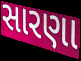
સારણા